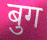
बुग